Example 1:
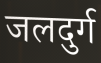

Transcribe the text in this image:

जलदुर्ग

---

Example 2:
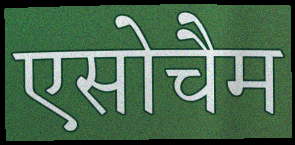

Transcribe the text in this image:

एसोचैम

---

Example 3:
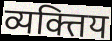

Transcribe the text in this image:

व्यक्तिय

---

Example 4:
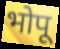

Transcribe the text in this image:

भोपू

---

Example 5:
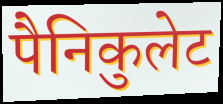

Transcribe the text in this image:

पैनिकुलेट